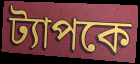
ট্যাপকে